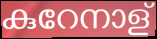
കുറേനാള്